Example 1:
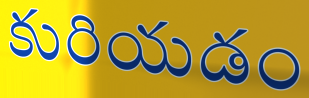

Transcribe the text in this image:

కురియడం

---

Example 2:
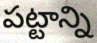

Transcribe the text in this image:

పట్టాన్ని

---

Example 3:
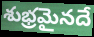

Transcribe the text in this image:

శుభ్రమైనదే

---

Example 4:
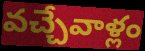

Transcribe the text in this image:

వచ్చేవాళ్లం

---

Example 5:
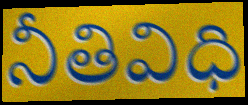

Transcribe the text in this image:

నీతివిధి